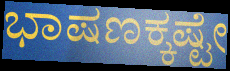
ಭಾಷಣಕ್ಕಷ್ಟೇ